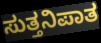
ಸುತ್ತನಿಪಾತ